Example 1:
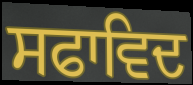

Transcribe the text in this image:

ਸਫਾਵਿਦ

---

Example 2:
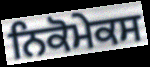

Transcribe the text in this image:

ਨਿਕੋਮੇਕਸ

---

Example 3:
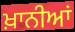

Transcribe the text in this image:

ਖ਼ਾਨੀਆਂ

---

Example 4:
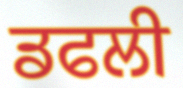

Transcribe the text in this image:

ਡਫਲੀ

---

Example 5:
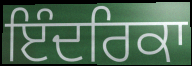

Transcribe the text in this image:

ਇੰਦਰਿਕਾ